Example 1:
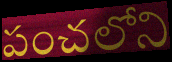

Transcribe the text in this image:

పంచలోని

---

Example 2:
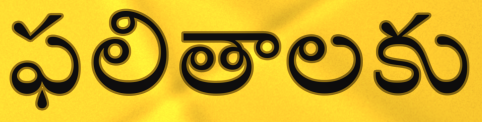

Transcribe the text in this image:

ఫలితాలకు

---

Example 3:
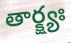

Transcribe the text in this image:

తార్క్ష్యః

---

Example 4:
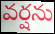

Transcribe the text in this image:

వర్షను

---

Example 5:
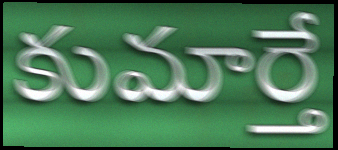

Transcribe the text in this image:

కుమార్తే